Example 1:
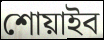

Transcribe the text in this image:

শোয়াইব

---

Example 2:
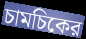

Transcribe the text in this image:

চামচিকের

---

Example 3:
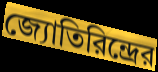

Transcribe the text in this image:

জ্যোতিরিন্দ্রের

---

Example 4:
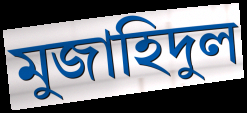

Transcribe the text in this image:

মুজাহিদুল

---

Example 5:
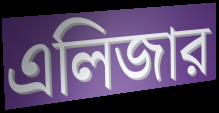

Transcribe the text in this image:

এলিজার